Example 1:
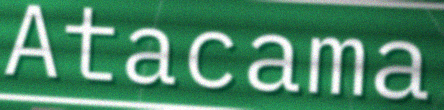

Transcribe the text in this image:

Atacama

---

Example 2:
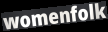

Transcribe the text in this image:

womenfolk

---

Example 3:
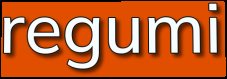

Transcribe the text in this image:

regumi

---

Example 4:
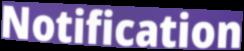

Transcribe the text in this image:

Notification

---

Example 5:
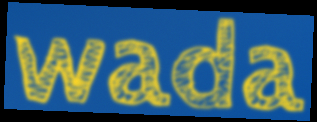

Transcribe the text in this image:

wada